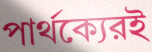
পার্থক্যেরই